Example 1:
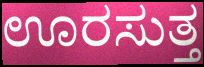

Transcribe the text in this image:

ಊರಸುತ್ತ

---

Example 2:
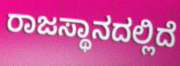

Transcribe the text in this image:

ರಾಜಸ್ಥಾನದಲ್ಲಿದೆ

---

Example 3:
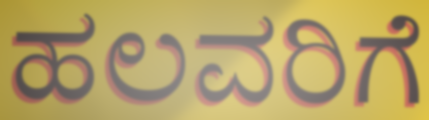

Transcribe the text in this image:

ಹಲವರಿಗೆ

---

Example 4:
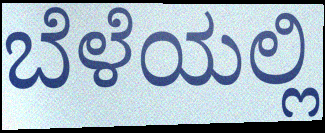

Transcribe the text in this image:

ಬೆಳೆಯಲ್ಲಿ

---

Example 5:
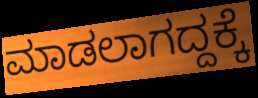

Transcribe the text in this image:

ಮಾಡಲಾಗದ್ದಕ್ಕೆ